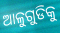
ଆଳୁଗୁଡିକୁ